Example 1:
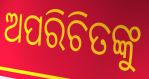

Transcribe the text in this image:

ଅପରିଚିତଙ୍କୁ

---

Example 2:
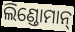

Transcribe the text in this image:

ଲିଣ୍ଡୋମାନ୍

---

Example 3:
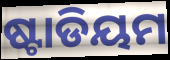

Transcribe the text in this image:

ଷ୍ଟାଡିୟମ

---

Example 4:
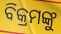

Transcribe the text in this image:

ବିକ୍ରମଙ୍କୁ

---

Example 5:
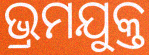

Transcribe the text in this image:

ଭ୍ରମଯୁକ୍ତ